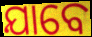
ଯାବେ